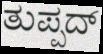
ತುಪ್ಪದ್